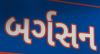
બર્ગસન